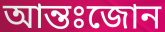
আন্তঃজোন